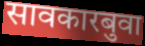
सावकारबुवा